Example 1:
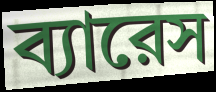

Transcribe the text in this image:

ব্যারেস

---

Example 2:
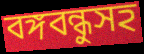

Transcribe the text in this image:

বঙ্গবন্ধুসহ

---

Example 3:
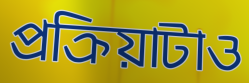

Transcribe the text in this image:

প্রক্রিয়াটাও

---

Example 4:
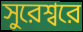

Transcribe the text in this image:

সুরেশ্বরে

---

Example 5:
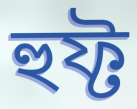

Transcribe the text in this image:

হুফ্ট